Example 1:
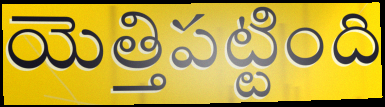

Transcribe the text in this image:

యెత్తిపట్టింది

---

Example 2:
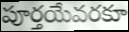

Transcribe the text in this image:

పూర్తయేవరకూ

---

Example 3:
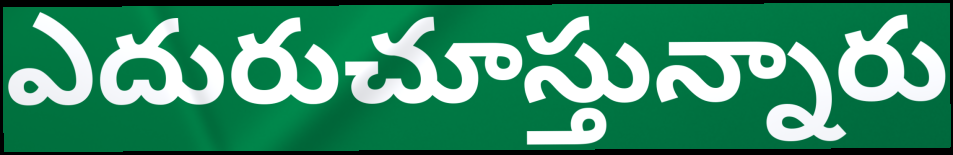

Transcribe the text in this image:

ఎదురుచూస్తున్నారు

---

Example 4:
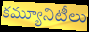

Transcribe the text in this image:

కమ్యూనిటీలు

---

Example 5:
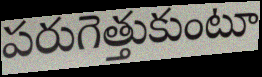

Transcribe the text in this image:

పరుగెత్తుకుంటూ